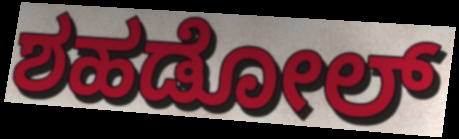
ಶಹಡೋಲ್